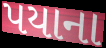
પયાના